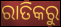
ରାତିକରୁ